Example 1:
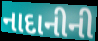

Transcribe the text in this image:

નાદાનીની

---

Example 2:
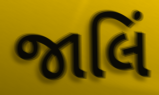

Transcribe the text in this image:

જાલિં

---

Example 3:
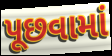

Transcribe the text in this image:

પૂછવામાં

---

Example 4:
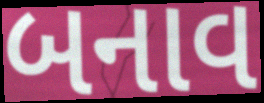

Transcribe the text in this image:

બનાવ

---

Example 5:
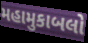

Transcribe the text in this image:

મહામુકાબલો